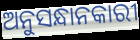
ଅନୁସନ୍ଧାନକାରୀ